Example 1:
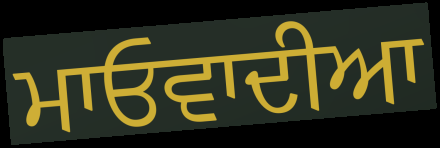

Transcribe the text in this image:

ਮਾਓਵਾਦੀਆ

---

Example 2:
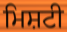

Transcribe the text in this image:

ਮਿਸ਼ਟੀ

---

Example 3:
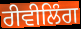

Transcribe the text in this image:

ਰੀਵੀਲਿੰਗ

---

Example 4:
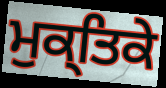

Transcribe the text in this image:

ਮੁਕ੍ਤਿਕੇ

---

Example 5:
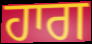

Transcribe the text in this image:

ਹਾਗ